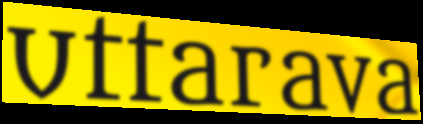
uttarava